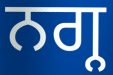
ਨਗ੍ਨ